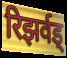
रिझर्वड्